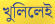
খুলিলেই